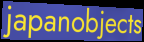
japanobjects